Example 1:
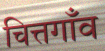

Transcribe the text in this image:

चित्तगाँव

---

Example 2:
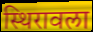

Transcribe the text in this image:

स्थिरावला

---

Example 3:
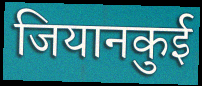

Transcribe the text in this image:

जियानकुई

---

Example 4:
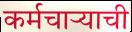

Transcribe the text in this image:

कर्मचाऱ्याची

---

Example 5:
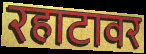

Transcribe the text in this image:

रहाटावर